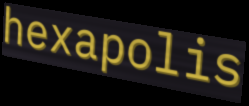
hexapolis